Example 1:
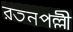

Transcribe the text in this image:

রতনপল্লী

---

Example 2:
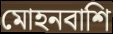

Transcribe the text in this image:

মোহনবাশি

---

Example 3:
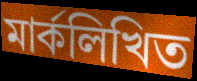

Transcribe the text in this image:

মার্কলিখিত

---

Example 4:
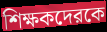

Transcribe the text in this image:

শিক্ষকদেরকে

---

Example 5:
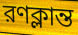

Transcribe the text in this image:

রণক্লান্ত